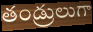
తండ్రులుగా